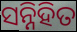
ସନ୍ନିହିତ